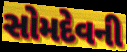
સોમદેવની